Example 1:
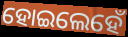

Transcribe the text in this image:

ହୋଇଲେହେଁ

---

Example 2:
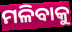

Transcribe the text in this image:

ମଳିବାକୁ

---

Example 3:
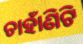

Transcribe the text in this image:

ଚାହାଁଣିଟି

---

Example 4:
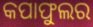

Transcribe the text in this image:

କପାଫୁଲର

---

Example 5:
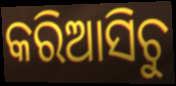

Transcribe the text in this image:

କରିଆସିଚୁ